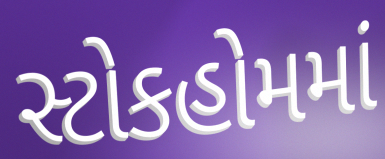
સ્ટોકહોમમાં